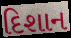
દિશાન